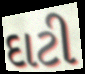
દાટી